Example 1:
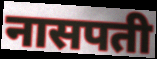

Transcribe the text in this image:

नासपती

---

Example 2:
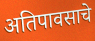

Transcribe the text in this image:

अतिपावसाचे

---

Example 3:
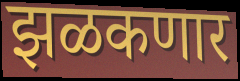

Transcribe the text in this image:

झळकणार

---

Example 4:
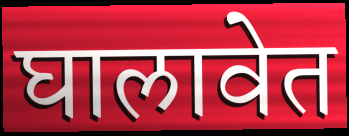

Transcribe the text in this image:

घालावेत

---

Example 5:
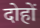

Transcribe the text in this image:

दोहों